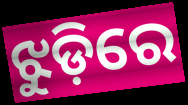
ଝୁଡ଼ିରେ